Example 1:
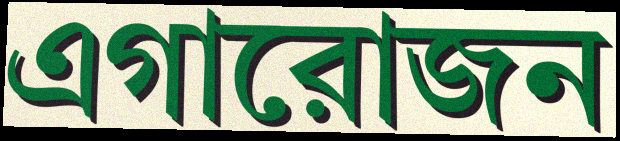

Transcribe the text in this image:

এগারোজন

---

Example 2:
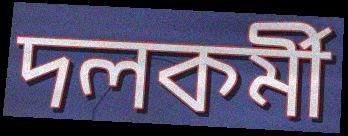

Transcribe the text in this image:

দলকর্মী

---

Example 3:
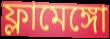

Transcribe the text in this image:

ফ্লামেঙ্গো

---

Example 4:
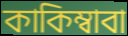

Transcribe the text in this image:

কাকিম্বাবা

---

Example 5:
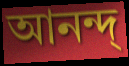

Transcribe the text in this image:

আনন্দ্